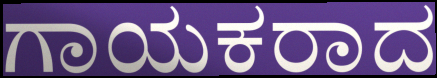
ಗಾಯಕರಾದ